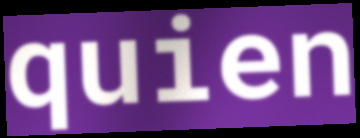
quien